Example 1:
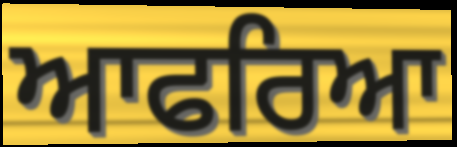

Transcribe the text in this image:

ਆਫਰਿਆ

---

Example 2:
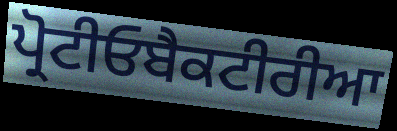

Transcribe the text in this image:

ਪ੍ਰੋਟੀਓਬੈਕਟੀਰੀਆ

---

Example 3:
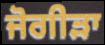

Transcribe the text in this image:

ਜੋਗੀੜਾ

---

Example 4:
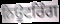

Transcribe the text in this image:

ਨਿਊਟਰਿੰਗ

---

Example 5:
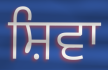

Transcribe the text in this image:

ਸ਼ਿਵਾ